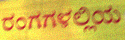
ರಂಗಗಳಲ್ಲಿಯ